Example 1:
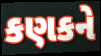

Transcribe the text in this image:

કણકને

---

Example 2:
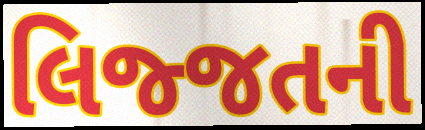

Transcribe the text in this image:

લિજ્જતની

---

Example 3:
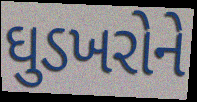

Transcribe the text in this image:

ઘુડખરોને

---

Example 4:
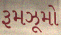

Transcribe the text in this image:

રૂમઝૂમો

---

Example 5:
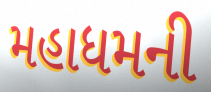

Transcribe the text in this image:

મહાધમની